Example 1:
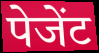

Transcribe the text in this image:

पेजेंट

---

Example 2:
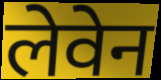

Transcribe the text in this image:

लेवेन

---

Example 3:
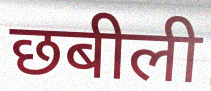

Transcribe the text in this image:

छबीली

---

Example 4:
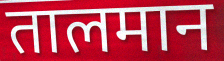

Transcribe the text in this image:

तालमान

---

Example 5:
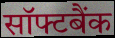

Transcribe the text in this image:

सॉफ्टबैंक